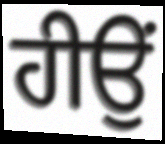
ਹੀਉਂ